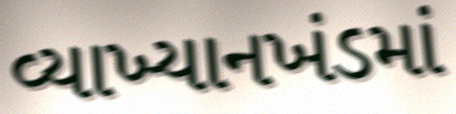
વ્યાખ્યાનખંડમાં